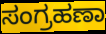
ಸಂಗ್ರಹಣಾ